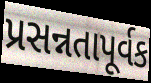
પ્રસન્નતાપૂર્વક